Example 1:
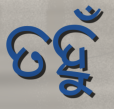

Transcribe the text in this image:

ତହୁଁ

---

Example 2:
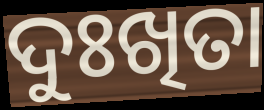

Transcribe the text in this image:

ଦୁଃଖିତା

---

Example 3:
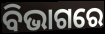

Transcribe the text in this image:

ବିଭାଗରେ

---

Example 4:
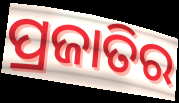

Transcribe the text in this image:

ପ୍ରଜାତିର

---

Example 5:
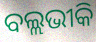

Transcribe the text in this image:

ବଲ୍ଲଭୀକି